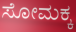
ಸೋಮಕ್ಕ